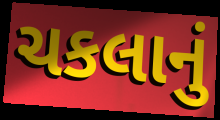
ચકલાનું